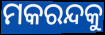
ମକରନ୍ଦକୁ